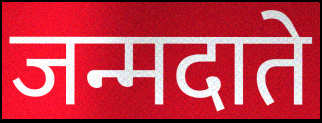
जन्मदाते